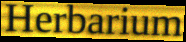
Herbarium